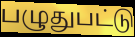
பழுதுபட்டு